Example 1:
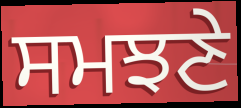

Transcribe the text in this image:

ਸਮਝਣੇ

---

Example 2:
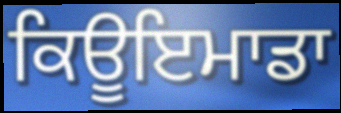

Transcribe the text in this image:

ਕਿਊਇਮਾਡਾ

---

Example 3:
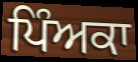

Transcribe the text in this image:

ਪਿੰਅਕਾ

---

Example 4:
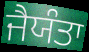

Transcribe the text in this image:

ਜੈਯੰਤਾ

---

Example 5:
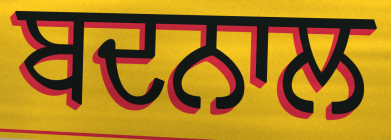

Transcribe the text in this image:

ਬਦਨਾਲ